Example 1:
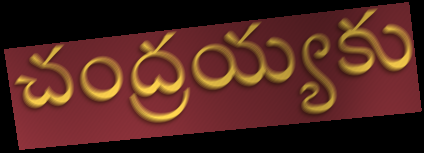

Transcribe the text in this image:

చంద్రయ్యకు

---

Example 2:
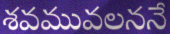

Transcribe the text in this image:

శవమువలననే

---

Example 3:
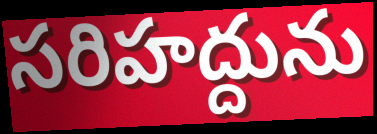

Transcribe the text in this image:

సరిహద్దును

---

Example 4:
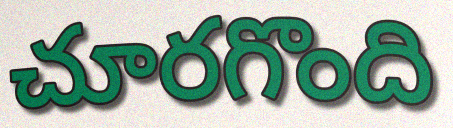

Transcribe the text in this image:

చూరగొంది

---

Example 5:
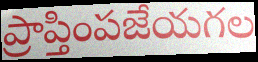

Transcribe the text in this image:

ప్రాప్తింపజేయగల